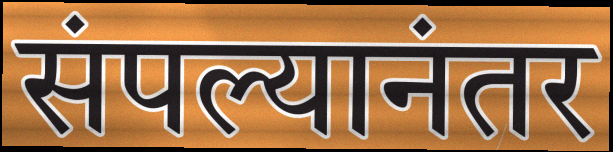
संपल्यानंतर